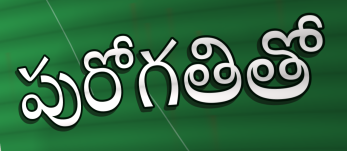
పురోగతితో